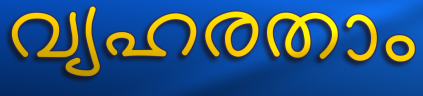
വ്യഹരതാം